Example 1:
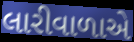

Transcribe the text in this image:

લારીવાળાએ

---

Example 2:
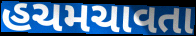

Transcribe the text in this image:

હચમચાવતા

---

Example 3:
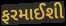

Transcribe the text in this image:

ફરમાઈશી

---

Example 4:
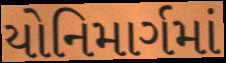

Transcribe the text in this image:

યોનિમાર્ગમાં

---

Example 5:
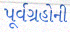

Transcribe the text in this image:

પૂર્વગ્રહોની